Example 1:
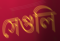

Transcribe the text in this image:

সেগুলি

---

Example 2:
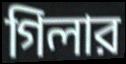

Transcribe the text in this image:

গিলার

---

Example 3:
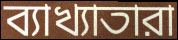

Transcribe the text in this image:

ব্যাখ্যাতারা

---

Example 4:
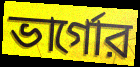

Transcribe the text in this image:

ভার্গোর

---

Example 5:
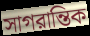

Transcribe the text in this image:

সাগরান্তিক